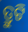
ତ୍ରୁଟି